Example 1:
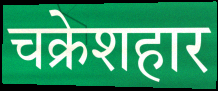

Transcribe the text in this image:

चक्रेशहार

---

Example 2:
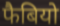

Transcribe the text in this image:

फैबियो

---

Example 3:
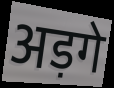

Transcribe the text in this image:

अड़गे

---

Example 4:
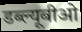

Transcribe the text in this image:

डब्ल्यूबीओ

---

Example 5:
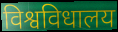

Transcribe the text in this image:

विश्वविधालय